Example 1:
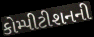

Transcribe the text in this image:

કોમ્પીટીશનની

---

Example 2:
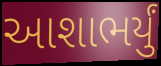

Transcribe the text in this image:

આશાભર્યું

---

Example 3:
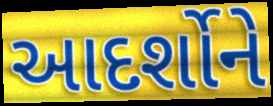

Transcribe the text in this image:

આદર્શોને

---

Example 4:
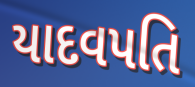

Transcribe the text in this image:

યાદવપતિ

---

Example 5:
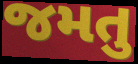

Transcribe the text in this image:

જમતુ